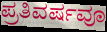
ಪ್ರತಿವರ್ಷವೂ